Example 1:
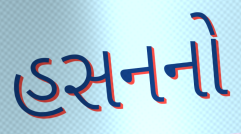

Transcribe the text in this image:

હસનનો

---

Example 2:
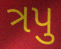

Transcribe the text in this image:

ત્રપુ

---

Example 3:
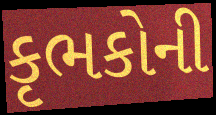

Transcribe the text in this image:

કૃભકોની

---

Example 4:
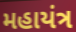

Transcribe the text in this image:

મહાયંત્ર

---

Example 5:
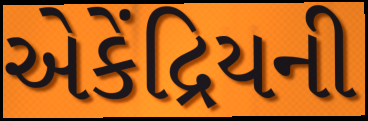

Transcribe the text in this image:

એકેંદ્રિયની